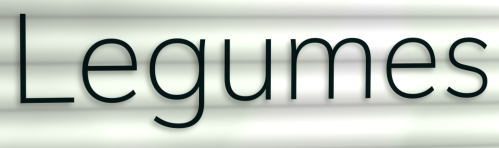
Legumes